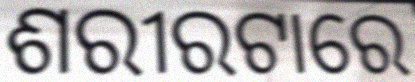
ଶରୀରଟାରେ